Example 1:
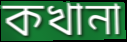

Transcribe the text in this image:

কখানা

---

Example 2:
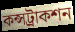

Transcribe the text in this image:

কন্সট্রাকশন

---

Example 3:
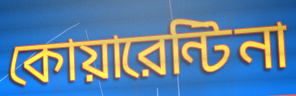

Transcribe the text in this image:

কোয়ারেন্টিনা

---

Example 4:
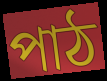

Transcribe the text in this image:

পাঠ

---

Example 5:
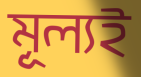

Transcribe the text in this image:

মূল্যই